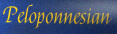
Peloponnesian